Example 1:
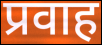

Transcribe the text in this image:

प्रवाह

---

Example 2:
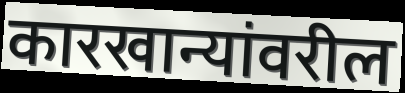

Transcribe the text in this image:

कारखान्यांवरील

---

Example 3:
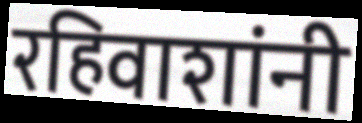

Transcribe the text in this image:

रहिवाशांनी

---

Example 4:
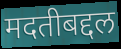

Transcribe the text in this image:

मदतीबद्दल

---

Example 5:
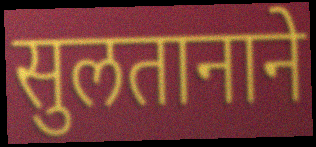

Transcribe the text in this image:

सुलतानाने